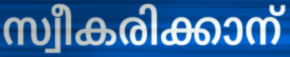
സ്വീകരിക്കാന്